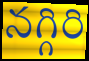
నగ్గిరి